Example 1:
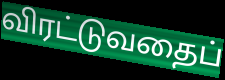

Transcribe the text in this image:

விரட்டுவதைப்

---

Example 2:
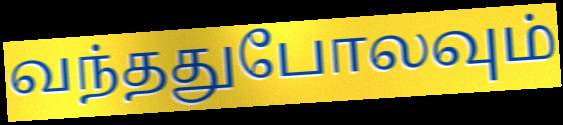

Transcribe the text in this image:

வந்ததுபோலவும்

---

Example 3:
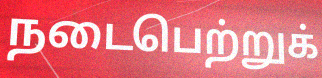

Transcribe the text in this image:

நடைபெற்றுக்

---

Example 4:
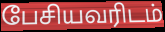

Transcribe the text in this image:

பேசியவரிடம்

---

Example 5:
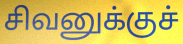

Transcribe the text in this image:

சிவனுக்குச்